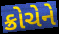
ક્રોચેને